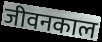
जीवनकाल